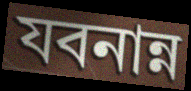
যবনান্ন